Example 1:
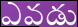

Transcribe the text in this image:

ఎవడు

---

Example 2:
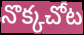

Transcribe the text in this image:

నొక్కచోట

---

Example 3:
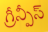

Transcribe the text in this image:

గ్రీన్పీస్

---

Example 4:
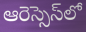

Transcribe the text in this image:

ఆరెస్సెస్‌లో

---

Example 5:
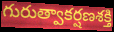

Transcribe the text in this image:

గురుత్వాకర్షణశక్తి